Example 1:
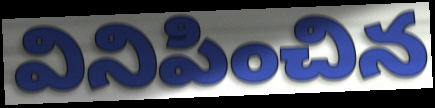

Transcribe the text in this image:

వినిపించిన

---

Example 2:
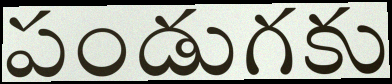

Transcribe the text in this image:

పండుగకు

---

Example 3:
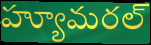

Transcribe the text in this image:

హ్యూమరల్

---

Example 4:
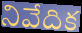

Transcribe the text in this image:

నివేదిక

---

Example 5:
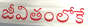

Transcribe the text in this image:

జీవితంలోకే